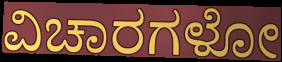
ವಿಚಾರಗಳೋ